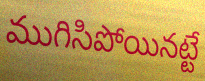
ముగిసిపోయినట్టే